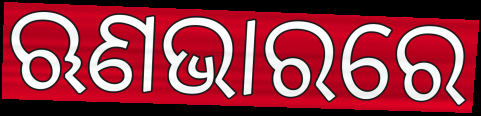
ଋଣଭାରରେ